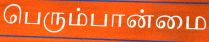
பெரும்பான்மை